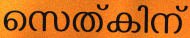
സെത്കിന്